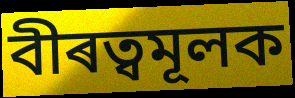
বীৰত্বমূলক